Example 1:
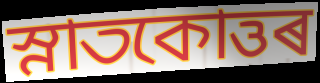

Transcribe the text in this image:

স্নাতকোত্তৰ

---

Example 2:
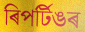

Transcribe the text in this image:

ৰিপৰ্টিঙৰ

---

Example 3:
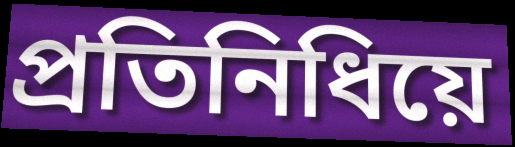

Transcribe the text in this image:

প্ৰতিনিধিয়ে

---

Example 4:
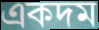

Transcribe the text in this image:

একদম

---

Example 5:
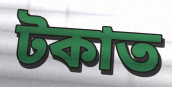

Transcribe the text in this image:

টকাত